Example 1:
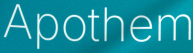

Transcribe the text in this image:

Apothem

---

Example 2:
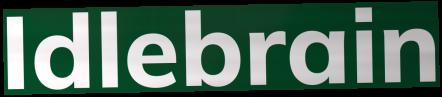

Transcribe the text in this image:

Idlebrain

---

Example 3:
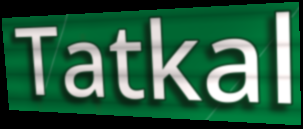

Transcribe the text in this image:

Tatkal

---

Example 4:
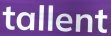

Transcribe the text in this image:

tallent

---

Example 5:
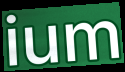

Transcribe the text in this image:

ium